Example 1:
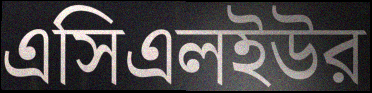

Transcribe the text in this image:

এসিএলইউর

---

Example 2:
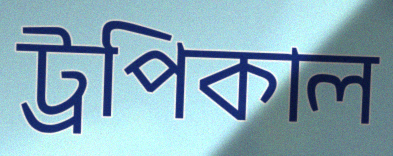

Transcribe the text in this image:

ট্রপিকাল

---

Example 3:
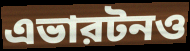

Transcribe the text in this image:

এভারটনও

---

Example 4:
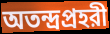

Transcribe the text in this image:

অতন্দ্রপ্রহরী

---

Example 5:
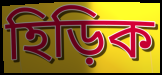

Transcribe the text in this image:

হিড়িক